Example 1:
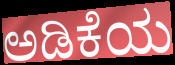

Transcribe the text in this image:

ಅಡಿಕೆಯ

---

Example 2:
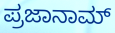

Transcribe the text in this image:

ಪ್ರಜಾನಾಮ್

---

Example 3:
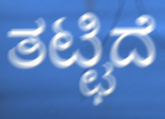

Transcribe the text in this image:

ತಟ್ಟಿದೆ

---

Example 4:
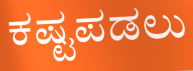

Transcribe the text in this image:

ಕಷ್ಟಪಡಲು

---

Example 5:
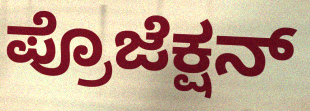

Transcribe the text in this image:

ಪ್ರೊಜೆಕ್ಷನ್